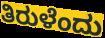
ತಿರುಳೆಂದು